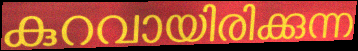
കുറവായിരിക്കുന്ന